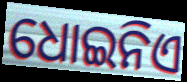
ଧୋଇନିଏ